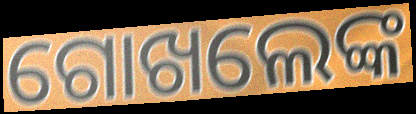
ଗୋଖଲେଙ୍କ